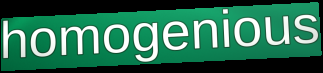
homogenious